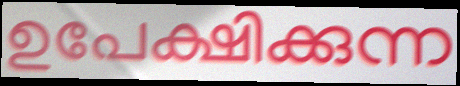
ഉപേക്ഷിക്കുന്ന